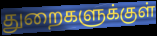
துறைகளுக்குள்